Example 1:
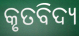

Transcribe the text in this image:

କୃତବିଦ୍ଯ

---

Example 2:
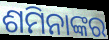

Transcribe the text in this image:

ଶମିନାଙ୍କର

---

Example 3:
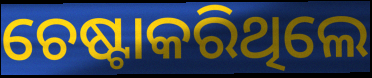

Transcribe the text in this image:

ଚେଷ୍ଟାକରିଥିଲେ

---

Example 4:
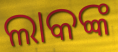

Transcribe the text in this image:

ଲାକଙ୍କ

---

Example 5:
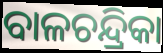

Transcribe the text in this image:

ବାଳଚନ୍ଦ୍ରିକା